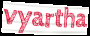
vyartha